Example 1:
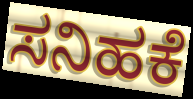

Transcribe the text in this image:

ಸನಿಹಕೆ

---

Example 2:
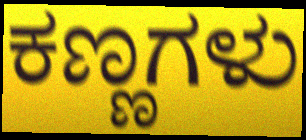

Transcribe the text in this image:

ಕಣ್ಣಗಳು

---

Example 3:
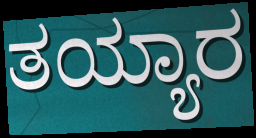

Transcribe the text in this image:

ತಯ್ಯಾರ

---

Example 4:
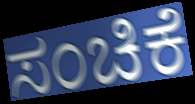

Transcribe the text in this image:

ಸಂಚಿಕೆ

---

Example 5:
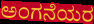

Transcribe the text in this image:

ಅಂಗನೆಯರ